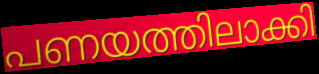
പണയത്തിലാക്കി